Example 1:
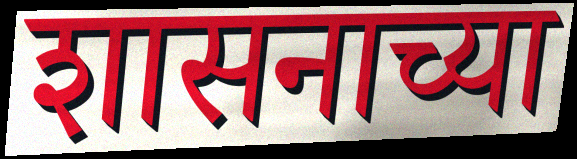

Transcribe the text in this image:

शासनाच्या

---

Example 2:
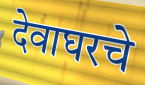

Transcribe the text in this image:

देवाघरचे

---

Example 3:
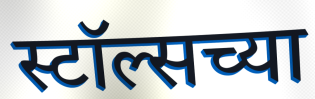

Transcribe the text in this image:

स्टॉल्सच्या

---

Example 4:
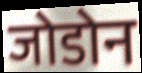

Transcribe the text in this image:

जोडोन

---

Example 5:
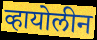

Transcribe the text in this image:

व्हायोलीन